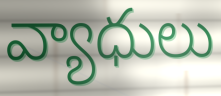
వ్యాధులు